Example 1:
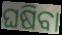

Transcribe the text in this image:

ଘଷିବା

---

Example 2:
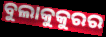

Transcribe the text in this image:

ବୁଲାକୁକୁରର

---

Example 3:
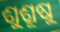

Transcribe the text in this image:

ଶୁଶ୍ରୂଷୁ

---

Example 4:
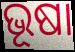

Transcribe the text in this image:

ଭୂଷା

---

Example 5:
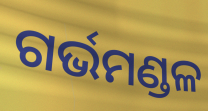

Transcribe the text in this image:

ଗର୍ଭମଣ୍ଡଳ